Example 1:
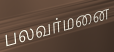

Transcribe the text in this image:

பலவர்மனை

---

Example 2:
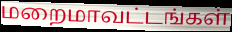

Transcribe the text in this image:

மறைமாவட்டங்கள்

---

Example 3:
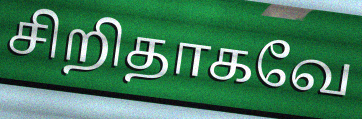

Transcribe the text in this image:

சிறிதாகவே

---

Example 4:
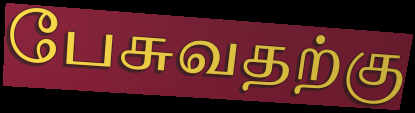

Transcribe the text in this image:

பேசுவதற்கு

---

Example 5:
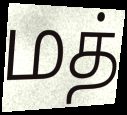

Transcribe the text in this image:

மத்